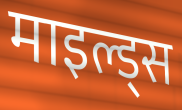
माइल्ड्स